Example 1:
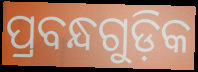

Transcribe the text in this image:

ପ୍ରବନ୍ଧଗୁଡ଼ିକ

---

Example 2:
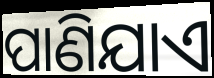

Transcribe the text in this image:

ପାଣିଯାଏ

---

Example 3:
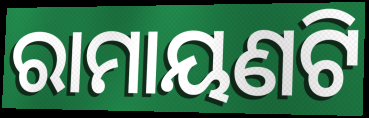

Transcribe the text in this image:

ରାମାୟଣଟି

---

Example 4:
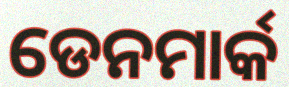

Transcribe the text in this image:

ଡେନମାର୍କ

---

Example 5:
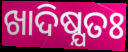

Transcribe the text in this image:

ଖାଦିଷ୍ଯତଃ